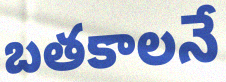
బతకాలనే